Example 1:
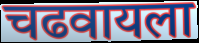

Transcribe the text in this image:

चढवायला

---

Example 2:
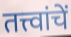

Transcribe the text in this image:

तत्त्वांचें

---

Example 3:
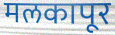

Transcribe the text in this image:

मलकापूर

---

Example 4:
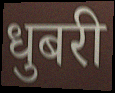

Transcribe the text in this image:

धुबरी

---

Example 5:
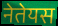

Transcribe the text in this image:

नेतेयस